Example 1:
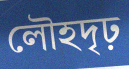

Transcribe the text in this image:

লৌহদৃঢ়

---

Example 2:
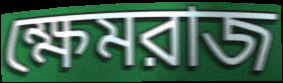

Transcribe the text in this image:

ক্ষেমরাজ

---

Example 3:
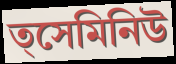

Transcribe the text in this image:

ত্সেমিনিউ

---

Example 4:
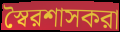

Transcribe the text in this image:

স্বৈরশাসকরা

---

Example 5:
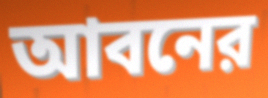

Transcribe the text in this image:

আবনের